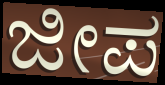
ಜೀಪ